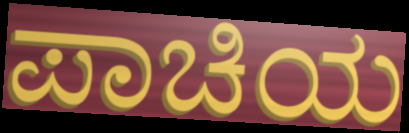
ಪಾಚಿಯ